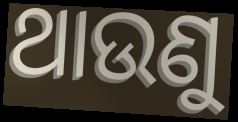
ଥାଉଣୁ